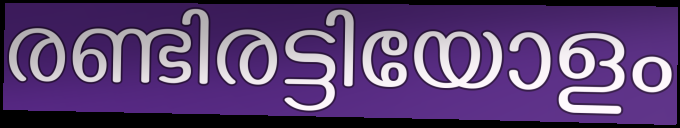
രണ്ടിരട്ടിയോളം